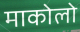
माकोलो